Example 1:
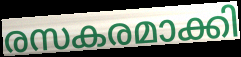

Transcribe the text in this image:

രസകരമാക്കി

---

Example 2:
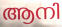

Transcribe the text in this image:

ആനി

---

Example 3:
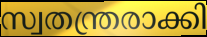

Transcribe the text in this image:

സ്വതന്ത്രരാക്കി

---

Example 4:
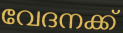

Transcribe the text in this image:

വേദനക്ക്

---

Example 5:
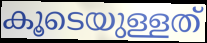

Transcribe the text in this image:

കൂടെയുള്ളത്